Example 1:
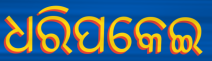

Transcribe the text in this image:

ଧରିପକେଇ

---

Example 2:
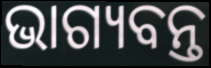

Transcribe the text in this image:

ଭାଗ୍ୟବନ୍ତ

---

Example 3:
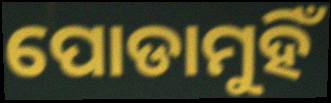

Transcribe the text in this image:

ପୋଡାମୁହିଁ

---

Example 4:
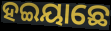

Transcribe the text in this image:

ହଇୟାଛେ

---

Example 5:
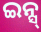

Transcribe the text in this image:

ଇନ୍ସ୍